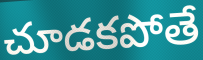
చూడకపోతే